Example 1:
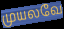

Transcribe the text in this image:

முயலவே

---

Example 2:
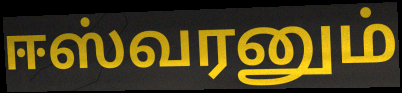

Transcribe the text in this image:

ஈஸ்வரனும்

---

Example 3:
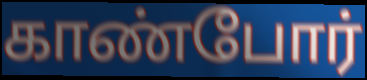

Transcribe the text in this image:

காண்போர்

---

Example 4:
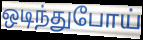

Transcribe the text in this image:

ஒடிந்துபோய்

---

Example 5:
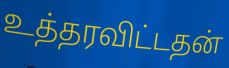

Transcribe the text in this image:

உத்தரவிட்டதன்